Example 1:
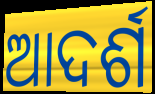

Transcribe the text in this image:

ଆଦର୍ଶ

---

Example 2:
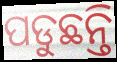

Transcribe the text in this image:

ପଡୁଛନ୍ତି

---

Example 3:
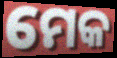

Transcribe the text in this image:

ମେକ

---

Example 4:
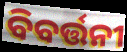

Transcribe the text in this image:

ବିବର୍ତ୍ତନୀ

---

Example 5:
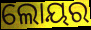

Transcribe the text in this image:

ଲୋୟର